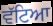
ਵੱਟਿਆ